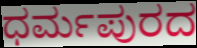
ಧರ್ಮಪುರದ